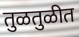
तुळतुळीत